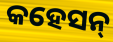
କହେସନ୍